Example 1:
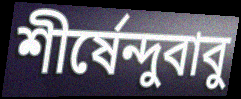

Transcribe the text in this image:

শীর্ষেন্দুবাবু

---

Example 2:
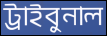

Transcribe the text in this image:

ট্রাইবুনাল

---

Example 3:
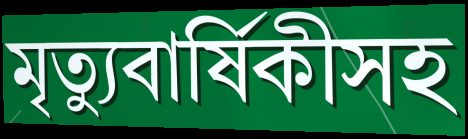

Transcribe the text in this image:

মৃত্যুবার্ষিকীসহ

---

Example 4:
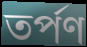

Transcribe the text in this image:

তর্পণ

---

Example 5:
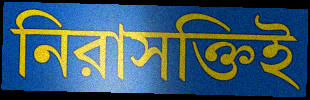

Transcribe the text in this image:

নিরাসক্তিই